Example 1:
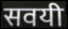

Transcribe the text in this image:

सवयी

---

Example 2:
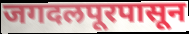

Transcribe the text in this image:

जगदलपूरपासून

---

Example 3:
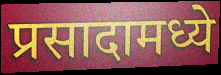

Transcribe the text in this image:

प्रसादामध्ये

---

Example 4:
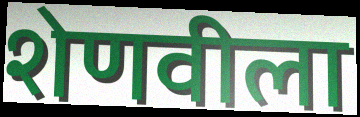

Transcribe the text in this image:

शेणवीला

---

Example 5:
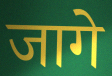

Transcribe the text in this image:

जागे